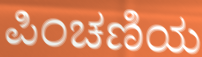
ಪಿಂಚಣಿಯ